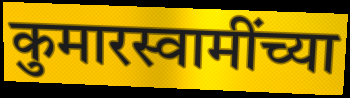
कुमारस्वामींच्या